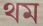
থম